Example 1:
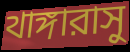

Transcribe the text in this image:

থাঙ্গারাসু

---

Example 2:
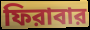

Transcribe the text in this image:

ফিরাবার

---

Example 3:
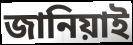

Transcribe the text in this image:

জানিয়াই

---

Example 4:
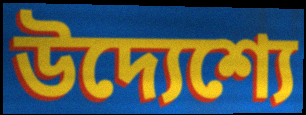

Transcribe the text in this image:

উদ্যেশ্যে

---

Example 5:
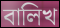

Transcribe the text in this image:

বালিখ